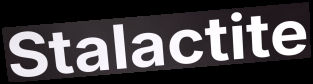
Stalactite